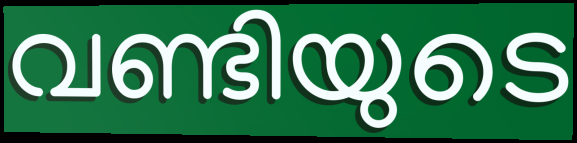
വണ്ടിയുടെ